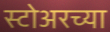
स्टोअरच्या